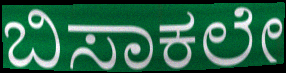
ಬಿಸಾಕಲೇ